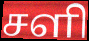
சளி